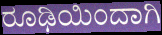
ರೂಢಿಯಿಂದಾಗಿ